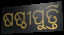
ଷଷ୍ଠୀପୁର୍ତ୍ତି